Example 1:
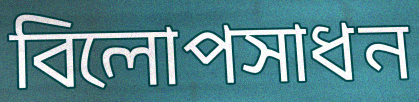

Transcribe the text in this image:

বিলোপসাধন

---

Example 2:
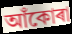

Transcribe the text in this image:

আঁকোৰা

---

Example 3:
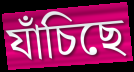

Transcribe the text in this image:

যাঁচিছে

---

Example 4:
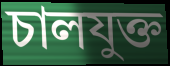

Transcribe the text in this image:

চালযুক্ত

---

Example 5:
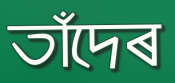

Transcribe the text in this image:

তাঁদেৰ